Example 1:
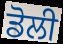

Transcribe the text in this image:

ਡੋਲੀ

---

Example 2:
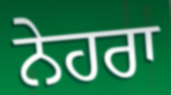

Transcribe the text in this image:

ਨੇਹਰਾ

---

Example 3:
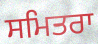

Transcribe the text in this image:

ਸਮਿਤਰਾ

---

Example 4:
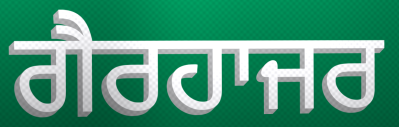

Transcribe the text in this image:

ਗੈਰਹਾਜਰ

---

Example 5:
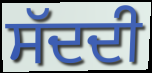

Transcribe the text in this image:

ਸੱਦਦੀ